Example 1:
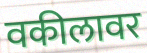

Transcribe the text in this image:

वकीलावर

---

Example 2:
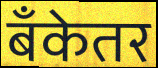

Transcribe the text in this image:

बँकेतर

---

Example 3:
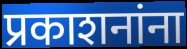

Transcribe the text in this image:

प्रकाशनांना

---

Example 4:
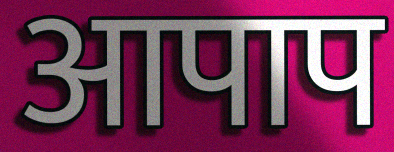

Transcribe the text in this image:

आपाप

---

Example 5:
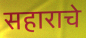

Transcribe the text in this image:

सहाराचे